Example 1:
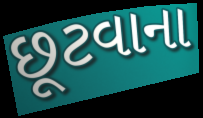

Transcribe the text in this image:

છૂટવાના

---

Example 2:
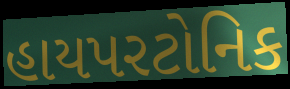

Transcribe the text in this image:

હાયપરટોનિક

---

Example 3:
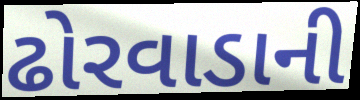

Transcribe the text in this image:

ઢોરવાડાની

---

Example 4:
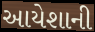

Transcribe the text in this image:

આયેશાની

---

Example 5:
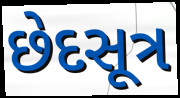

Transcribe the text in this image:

છેદસૂત્ર